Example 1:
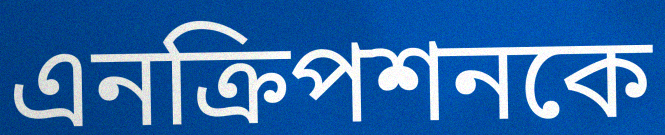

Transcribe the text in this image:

এনক্রিপশনকে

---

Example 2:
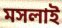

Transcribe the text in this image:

মসলাই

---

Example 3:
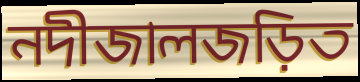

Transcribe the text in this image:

নদীজালজড়িত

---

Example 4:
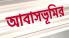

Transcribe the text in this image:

আবাসভূমির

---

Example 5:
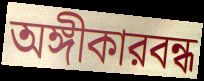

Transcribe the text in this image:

অঙ্গীকারবন্ধ